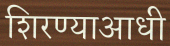
शिरण्याआधी